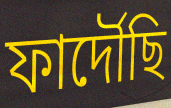
ফাৰ্দৌছি